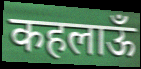
कहलाऊँ